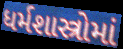
ધર્મશાસ્ત્રોમાં